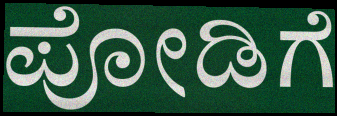
ಪೋಡಿಗೆ